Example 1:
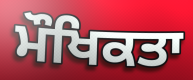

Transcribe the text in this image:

ਮੌਖਿਕਤਾ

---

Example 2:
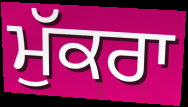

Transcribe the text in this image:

ਮੁੱਕਰਾ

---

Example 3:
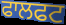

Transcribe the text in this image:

ਫਾਲਫਟ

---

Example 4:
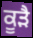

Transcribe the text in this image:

ਕੂੜੈ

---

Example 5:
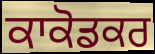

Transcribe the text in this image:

ਕਾਕੋਡਕਰ